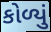
કોળ્યું